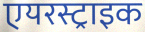
एयरस्ट्राइक